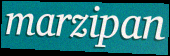
marzipan